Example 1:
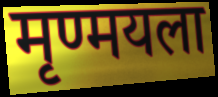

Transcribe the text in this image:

मृण्मयला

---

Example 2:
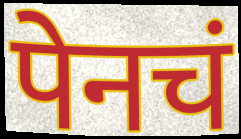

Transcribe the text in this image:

पेनचं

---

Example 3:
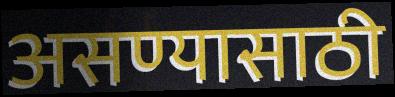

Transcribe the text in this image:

असण्यासाठी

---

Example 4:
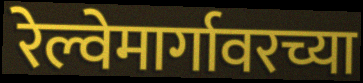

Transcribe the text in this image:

रेल्वेमार्गावरच्या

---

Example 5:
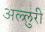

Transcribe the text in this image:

अल्लुरी